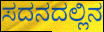
ಸದನದಲ್ಲಿನ